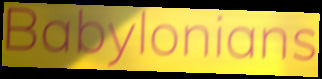
Babylonians